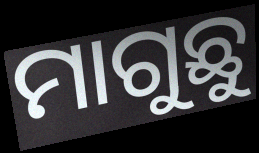
ମାଗୁଛୁ